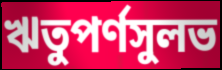
ঋতুপর্ণসুলভ